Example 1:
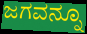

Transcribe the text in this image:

ಜಗವನ್ನೂ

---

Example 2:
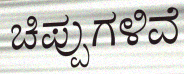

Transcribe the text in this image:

ಚಿಪ್ಪುಗಳಿವೆ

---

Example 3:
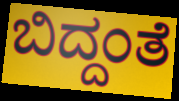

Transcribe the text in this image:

ಬಿದ್ದಂತೆ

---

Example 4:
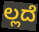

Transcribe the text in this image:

ಲ್ಲದೆ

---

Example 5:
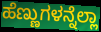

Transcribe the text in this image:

ಹೆಣ್ಣುಗಳನ್ನೆಲ್ಲಾ